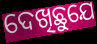
ଦେଖିଛୁଯେ